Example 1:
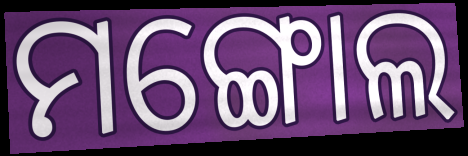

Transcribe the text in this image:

ମଙ୍ଗୋଲ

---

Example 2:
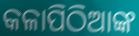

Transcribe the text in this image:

କଳାପିଠିଆଙ୍କ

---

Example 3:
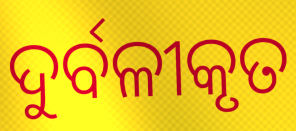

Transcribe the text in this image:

ଦୁର୍ବଳୀକୃତ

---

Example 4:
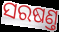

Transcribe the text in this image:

ସରଷଣ୍ତ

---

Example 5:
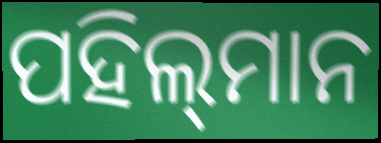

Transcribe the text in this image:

ପହିଲ୍‌ମାନ